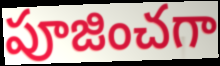
పూజించగా